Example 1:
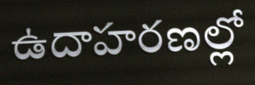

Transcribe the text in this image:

ఉదాహరణల్లో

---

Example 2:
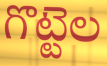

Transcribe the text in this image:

గొట్టెల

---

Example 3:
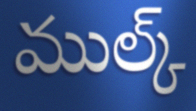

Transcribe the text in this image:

ముల్క్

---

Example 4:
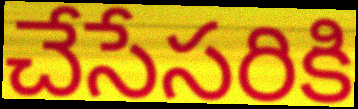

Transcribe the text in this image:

చేసేసరికి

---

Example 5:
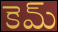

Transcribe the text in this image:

కెమ్